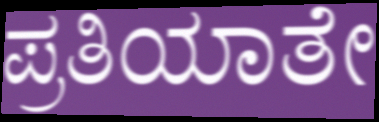
ಪ್ರತಿಯಾತೇ